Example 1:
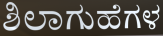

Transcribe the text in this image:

ಶಿಲಾಗುಹೆಗಳ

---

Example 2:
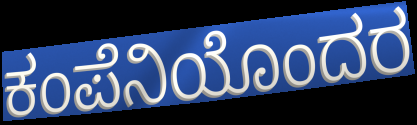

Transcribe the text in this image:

ಕಂಪೆನಿಯೊಂದರ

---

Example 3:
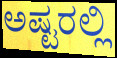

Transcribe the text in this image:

ಅಷ್ಟರಲ್ಲಿ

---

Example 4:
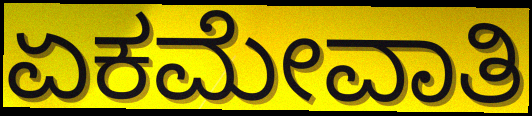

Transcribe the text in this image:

ಏಕಮೇವಾತಿ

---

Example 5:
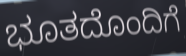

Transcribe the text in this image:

ಭೂತದೊಂದಿಗೆ